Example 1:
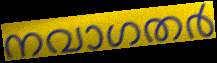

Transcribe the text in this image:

നവാഗതർ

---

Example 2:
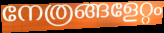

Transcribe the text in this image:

നേത്രങ്ങളേറ്റം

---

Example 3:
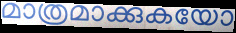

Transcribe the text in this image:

മാത്രമാക്കുകയോ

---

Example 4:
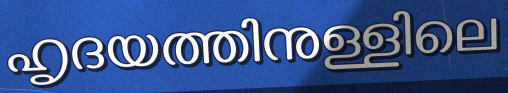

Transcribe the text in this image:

ഹൃദയത്തിനുള്ളിലെ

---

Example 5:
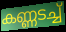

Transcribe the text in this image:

കണ്ണടച്ച്